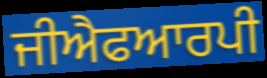
ਜੀਐਫਆਰਪੀ